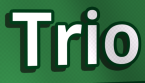
Trio